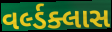
વર્લ્ડક્લાસ